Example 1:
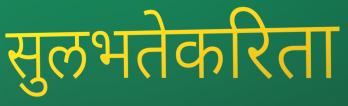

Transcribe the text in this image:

सुलभतेकरिता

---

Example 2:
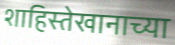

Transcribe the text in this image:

शाहिस्तेखानाच्या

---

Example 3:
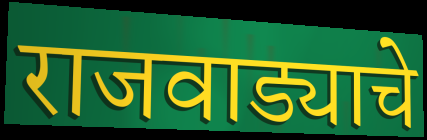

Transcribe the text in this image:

राजवाड्याचे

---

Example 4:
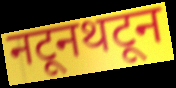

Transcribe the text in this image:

नटूनथटून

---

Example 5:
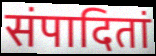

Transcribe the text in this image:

संपादितां